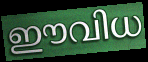
ഈവിധ